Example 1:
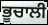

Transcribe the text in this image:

ਭੂਚਾਲੀ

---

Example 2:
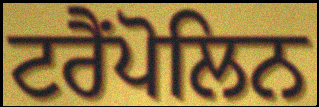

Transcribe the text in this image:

ਟਰੈਂਪੋਲਿਨ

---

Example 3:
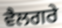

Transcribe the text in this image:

ਵੈਲਗਰੇ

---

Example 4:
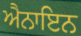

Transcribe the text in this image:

ਐਨਾਇਨ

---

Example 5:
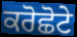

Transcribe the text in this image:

ਕਰੋਛੋਟੇ